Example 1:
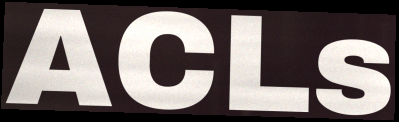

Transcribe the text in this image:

ACLs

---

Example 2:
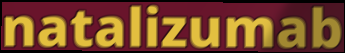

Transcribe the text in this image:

natalizumab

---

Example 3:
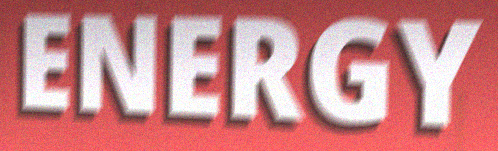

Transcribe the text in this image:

ENERGY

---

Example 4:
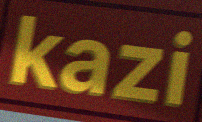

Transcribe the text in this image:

kazi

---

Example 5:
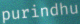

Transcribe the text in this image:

purindhu